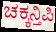
ಚಕ್ಕನ್ತಿಪಿ